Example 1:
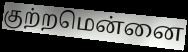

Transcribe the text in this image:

குற்றமென்னை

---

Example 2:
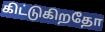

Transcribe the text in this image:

கிட்டுகிறதோ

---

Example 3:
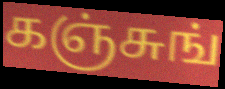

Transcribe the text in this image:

கஞ்சுங்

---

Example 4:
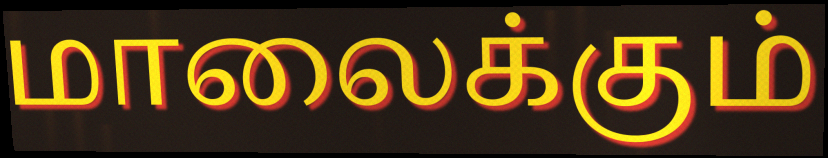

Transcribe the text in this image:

மாலைக்கும்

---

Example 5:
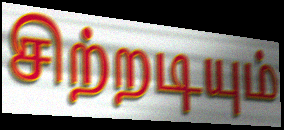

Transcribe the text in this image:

சிற்றடியும்